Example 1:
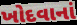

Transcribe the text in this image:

ખોદવાનાં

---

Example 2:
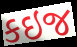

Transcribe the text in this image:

કઇજ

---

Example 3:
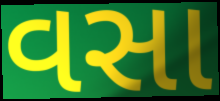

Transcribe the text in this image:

વસા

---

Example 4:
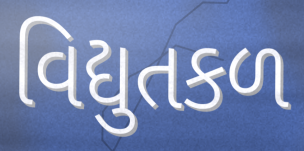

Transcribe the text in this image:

વિદ્યુતકળ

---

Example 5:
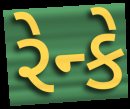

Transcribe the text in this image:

રેન્કે